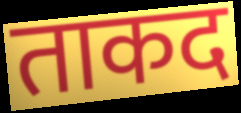
ताकद